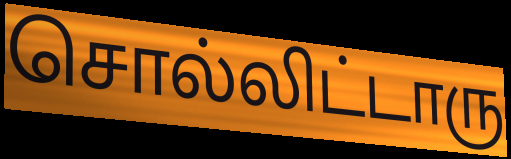
சொல்லிட்டாரு